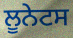
ਲੂਨੇਟਸ